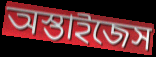
অস্তাইজেস